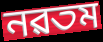
নৱতম